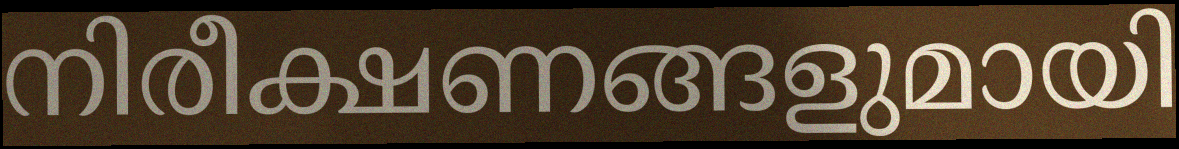
നിരീക്ഷണങ്ങളുമായി